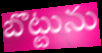
బొట్టును